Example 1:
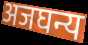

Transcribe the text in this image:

अजघन्य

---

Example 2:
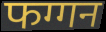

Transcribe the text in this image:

फग्गन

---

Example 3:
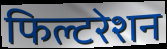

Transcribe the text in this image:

फिल्टरेशन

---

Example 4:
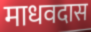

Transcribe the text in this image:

माधवदास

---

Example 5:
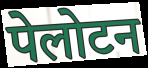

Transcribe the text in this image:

पेलोटन